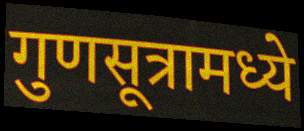
गुणसूत्रामध्ये